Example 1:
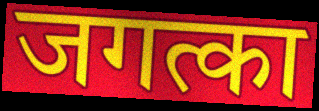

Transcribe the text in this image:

जगत्का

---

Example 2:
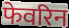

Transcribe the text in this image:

फेवरिन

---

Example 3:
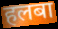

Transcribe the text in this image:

हलबा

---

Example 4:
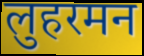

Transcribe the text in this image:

लुहरमन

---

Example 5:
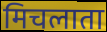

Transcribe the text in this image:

मिचलाता